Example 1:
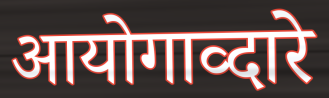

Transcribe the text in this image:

आयोगाव्दारे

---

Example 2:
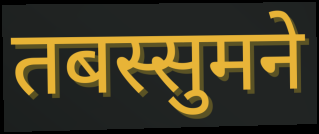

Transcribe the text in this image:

तबस्सुमने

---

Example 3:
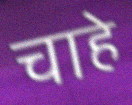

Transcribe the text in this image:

चाहे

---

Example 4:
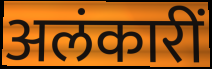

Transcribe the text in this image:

अलंकारीं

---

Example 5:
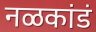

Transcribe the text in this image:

नळकांडं